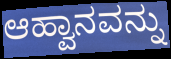
ಆಹ್ವಾನವನ್ನು